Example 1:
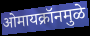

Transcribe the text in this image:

ओमायक्रॉनमुळे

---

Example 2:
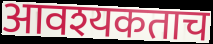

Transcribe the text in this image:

आवश्यकताच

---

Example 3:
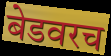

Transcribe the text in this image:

बेडवरच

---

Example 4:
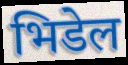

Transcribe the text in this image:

भिडेल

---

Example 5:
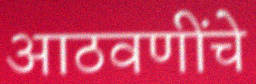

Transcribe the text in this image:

आठवणींचे